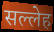
सल्लेह